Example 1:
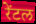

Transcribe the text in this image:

रेंटल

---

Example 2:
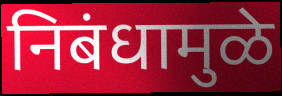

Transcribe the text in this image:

निबंधामुळे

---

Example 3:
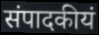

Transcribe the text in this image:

संपादकीयं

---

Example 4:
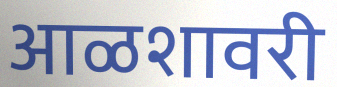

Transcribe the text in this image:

आळशावरी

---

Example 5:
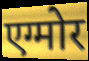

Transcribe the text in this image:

एग्मोर